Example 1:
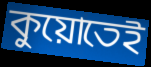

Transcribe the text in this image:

কুয়োতেই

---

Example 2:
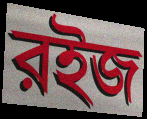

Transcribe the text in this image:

রইজ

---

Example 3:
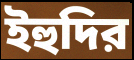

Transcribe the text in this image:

ইহুদির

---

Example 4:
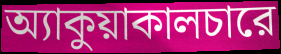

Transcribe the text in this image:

অ্যাকুয়াকালচারে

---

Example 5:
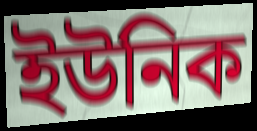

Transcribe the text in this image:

ইউনিক